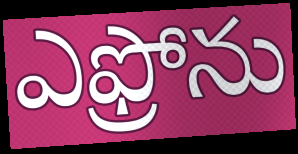
ఎఫ్రోను